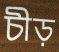
চীড়